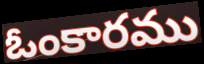
ఓంకారము